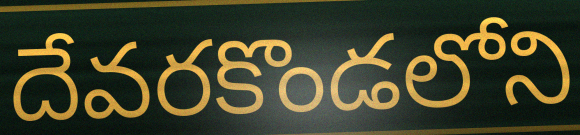
దేవరకొండలోని